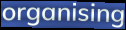
organising